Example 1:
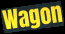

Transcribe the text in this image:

Wagon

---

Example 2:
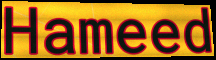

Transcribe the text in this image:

Hameed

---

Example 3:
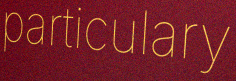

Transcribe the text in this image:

particulary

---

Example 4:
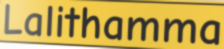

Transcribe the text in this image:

Lalithamma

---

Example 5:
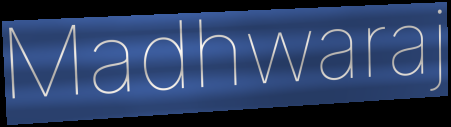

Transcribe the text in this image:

Madhwaraj